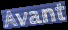
Avant